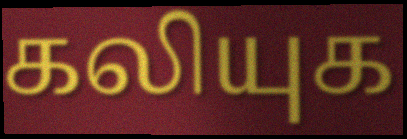
கலியுக